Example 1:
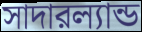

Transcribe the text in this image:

সাদারল্যান্ড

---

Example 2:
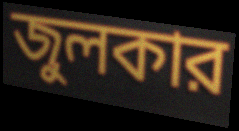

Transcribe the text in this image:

জুলকার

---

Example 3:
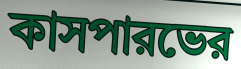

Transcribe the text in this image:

কাসপারভের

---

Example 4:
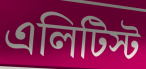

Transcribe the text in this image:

এলিটিস্ট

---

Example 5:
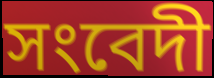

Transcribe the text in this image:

সংবেদী